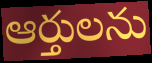
ఆర్తులను